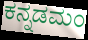
ಕನ್ನಡಮಂ